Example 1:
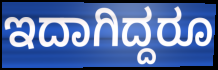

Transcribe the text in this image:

ಇದಾಗಿದ್ದರೂ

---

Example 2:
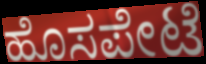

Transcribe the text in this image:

ಹೊಸಪೇಟೆ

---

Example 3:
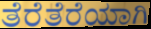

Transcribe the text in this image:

ತೆರೆತೆರೆಯಾಗಿ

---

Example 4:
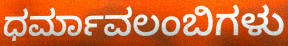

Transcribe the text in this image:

ಧರ್ಮಾವಲಂಬಿಗಳು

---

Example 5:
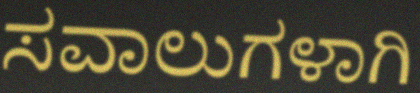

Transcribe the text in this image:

ಸವಾಲುಗಳಾಗಿ